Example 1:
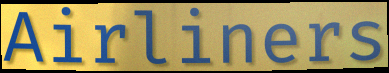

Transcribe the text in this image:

Airliners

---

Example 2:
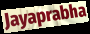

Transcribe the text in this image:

Jayaprabha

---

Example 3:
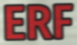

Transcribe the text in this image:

ERF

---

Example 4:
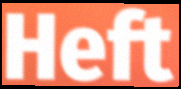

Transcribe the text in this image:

Heft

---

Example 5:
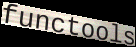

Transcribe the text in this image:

functools